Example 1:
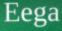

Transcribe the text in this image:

Eega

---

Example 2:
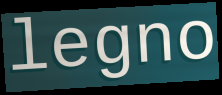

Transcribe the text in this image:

legno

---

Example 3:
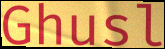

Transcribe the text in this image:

Ghusl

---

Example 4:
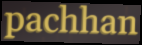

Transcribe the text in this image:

pachhan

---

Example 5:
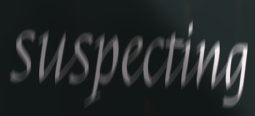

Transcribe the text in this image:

suspecting